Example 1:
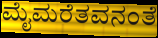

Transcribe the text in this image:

ಮೈಮರೆತವನಂತೆ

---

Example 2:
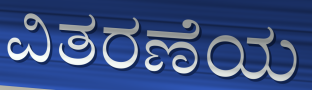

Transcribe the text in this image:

ವಿತರಣೆಯ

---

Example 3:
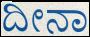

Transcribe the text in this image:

ದೀನಾ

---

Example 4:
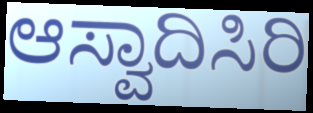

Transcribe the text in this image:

ಆಸ್ವಾದಿಸಿರಿ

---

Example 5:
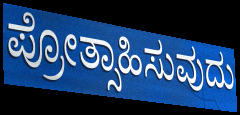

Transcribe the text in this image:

ಪ್ರೋತ್ಸಾಹಿಸುವುದು